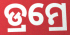
ଡ୍ରମ୍ରେ